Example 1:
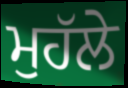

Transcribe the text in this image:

ਮੁਹੱਲੇ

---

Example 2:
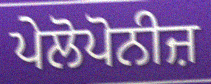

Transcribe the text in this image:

ਪੇਲੋਪੋਨੀਜ਼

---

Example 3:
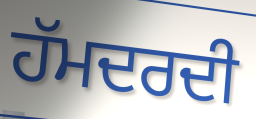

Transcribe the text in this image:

ਹੱਮਦਰਦੀ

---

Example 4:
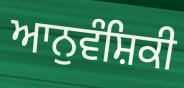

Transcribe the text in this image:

ਆਨੁਵੰਸ਼ਿਕੀ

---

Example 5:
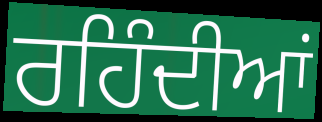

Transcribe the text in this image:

ਰਹਿੰਦੀਆਂ